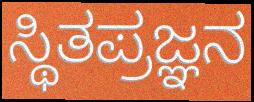
ಸ್ಥಿತಪ್ರಜ್ಞನ